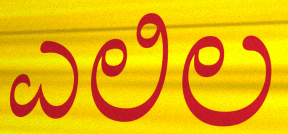
ಎಲಿಲ